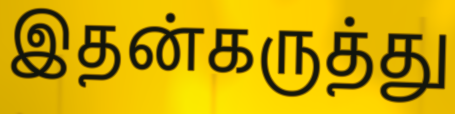
இதன்கருத்து